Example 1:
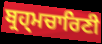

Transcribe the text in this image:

ਬ੍ਰਹ੍ਮਚਾਰਿਣੀ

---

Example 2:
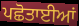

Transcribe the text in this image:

ਪਛੋਤਾਈਆਂ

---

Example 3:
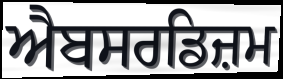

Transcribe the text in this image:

ਐਬਸਰਡਿਜ਼ਮ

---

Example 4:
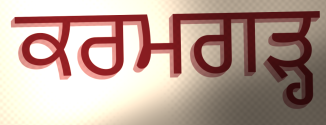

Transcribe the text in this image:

ਕਰਮਗੜ੍ਹ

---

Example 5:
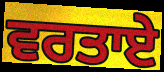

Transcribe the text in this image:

ਵਰਤਾਏ